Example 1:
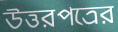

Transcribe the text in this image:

উত্তরপত্রের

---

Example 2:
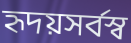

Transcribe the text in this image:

হৃদয়সর্বস্ব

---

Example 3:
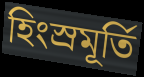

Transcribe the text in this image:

হিংস্রমূর্তি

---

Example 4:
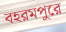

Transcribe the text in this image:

বহরমপুরে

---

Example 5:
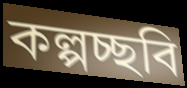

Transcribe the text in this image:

কল্পচ্ছবি